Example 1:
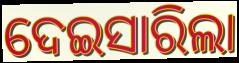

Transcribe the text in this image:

ଦେଇସାରିଲା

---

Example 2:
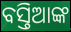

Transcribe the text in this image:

ବସ୍ତିଆଙ୍କ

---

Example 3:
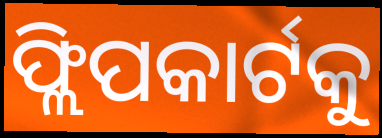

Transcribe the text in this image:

ଫ୍ଲିପକାର୍ଟକୁ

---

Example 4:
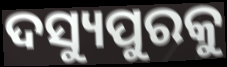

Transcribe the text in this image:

ଦସ୍ୟୁପୁରକୁ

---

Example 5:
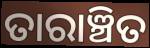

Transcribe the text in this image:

ତାରାଞ୍ଚିତ